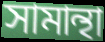
সামান্থা